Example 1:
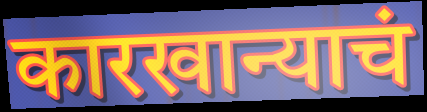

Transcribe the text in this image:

कारखान्याचं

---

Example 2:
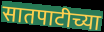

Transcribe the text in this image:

सातपाटीच्या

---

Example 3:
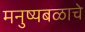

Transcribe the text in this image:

मनुष्यबळाचे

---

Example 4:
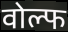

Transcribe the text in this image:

वोल्फ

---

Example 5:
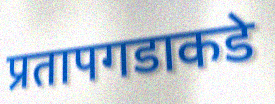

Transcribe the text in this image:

प्रतापगडाकडे